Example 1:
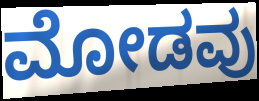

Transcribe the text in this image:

ಮೋಡವು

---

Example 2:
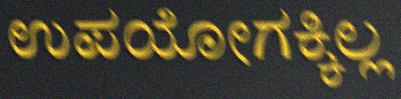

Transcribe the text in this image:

ಉಪಯೋಗಕ್ಕಿಲ್ಲ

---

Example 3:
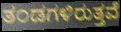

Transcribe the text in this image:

ತಂಡಗಳಿರುತ್ತವೆ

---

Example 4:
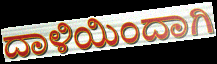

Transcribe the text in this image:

ದಾಳಿಯಿಂದಾಗಿ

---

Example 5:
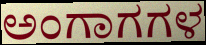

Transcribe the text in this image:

ಅಂಗಾಗಗಳ